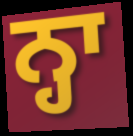
ਨ੍ਹਾ